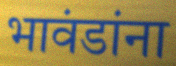
भावंडांना